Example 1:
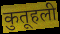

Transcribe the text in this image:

कुतूहली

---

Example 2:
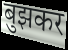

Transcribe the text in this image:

बुझकर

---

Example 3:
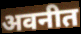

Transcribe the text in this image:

अवनीत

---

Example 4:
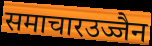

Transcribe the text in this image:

समाचारउज्जैन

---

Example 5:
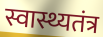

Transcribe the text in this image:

स्वास्थ्यतंत्र